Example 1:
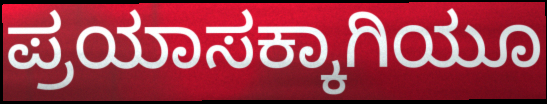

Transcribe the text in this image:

ಪ್ರಯಾಸಕ್ಕಾಗಿಯೂ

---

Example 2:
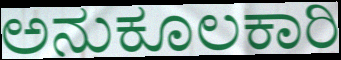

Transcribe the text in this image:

ಅನುಕೂಲಕಾರಿ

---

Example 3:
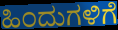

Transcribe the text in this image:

ಹಿಂದುಗಳಿಗೆ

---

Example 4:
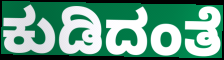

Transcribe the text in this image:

ಕುಡಿದಂತೆ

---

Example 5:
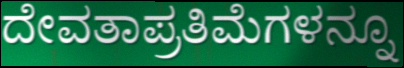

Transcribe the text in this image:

ದೇವತಾಪ್ರತಿಮೆಗಳನ್ನೂ